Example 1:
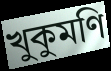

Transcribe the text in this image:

খুকুমণি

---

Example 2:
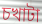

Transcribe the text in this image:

চখাটা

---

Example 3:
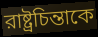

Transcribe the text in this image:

রাষ্ট্রচিন্তাকে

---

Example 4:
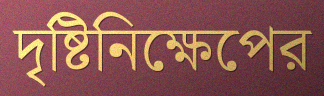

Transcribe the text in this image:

দৃষ্টিনিক্ষেপের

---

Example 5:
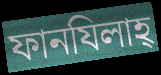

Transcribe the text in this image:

ফানযিলাহ্